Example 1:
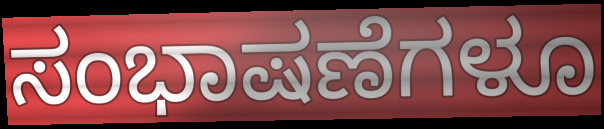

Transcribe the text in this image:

ಸಂಭಾಷಣೆಗಳೂ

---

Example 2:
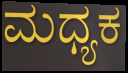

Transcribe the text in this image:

ಮಧ್ಯಕ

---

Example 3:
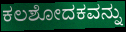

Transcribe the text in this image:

ಕಲಶೋದಕವನ್ನು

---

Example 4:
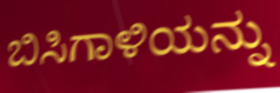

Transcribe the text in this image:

ಬಿಸಿಗಾಳಿಯನ್ನು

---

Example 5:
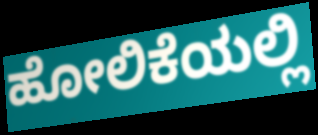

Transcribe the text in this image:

ಹೋಲಿಕೆಯಲ್ಲಿ